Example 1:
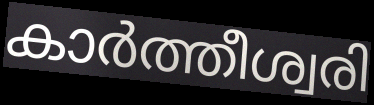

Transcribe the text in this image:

കാർത്തീശ്വരി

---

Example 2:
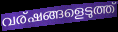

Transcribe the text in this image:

വര്ഷങ്ങളെടുത്ത്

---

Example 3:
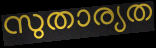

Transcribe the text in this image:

സുതാര്യത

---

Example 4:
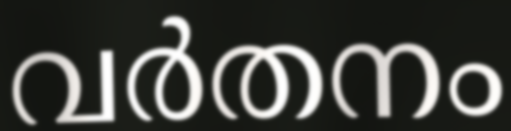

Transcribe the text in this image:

വർതനം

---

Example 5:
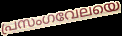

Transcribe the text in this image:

പ്രസംഗവേലയെ